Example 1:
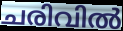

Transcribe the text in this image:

ചരിവിൽ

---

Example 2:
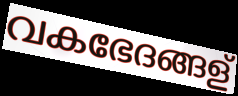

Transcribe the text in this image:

വകഭേദങ്ങള്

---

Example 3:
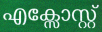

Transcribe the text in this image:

എക്സോസ്റ്റ്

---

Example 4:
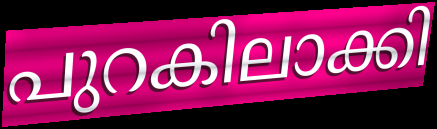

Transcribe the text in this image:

പുറകിലാക്കി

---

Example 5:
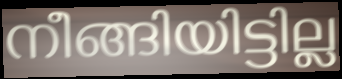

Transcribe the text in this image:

നീങ്ങിയിട്ടില്ല